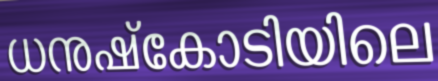
ധനുഷ്‌കോടിയിലെ